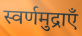
स्वर्णमुद्राएँ